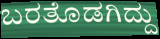
ಬರತೊಡಗಿದ್ದು